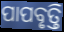
ପାପବୃତ୍ତି